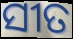
ସୀତ